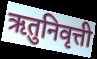
ऋतुनिवृत्ती